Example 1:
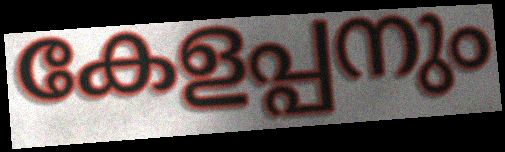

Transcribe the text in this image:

കേളപ്പനും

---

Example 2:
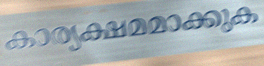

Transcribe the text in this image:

കാര്യക്ഷമമാക്കുക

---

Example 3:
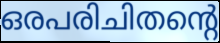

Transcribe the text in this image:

ഒരപരിചിതന്റെ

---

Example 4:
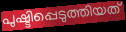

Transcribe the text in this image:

പുഷ്ടിപ്പെടുത്തിയത്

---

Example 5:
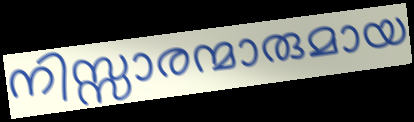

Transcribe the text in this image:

നിസ്സാരന്മാരുമായ